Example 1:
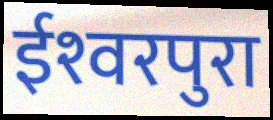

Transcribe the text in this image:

ईश्वरपुरा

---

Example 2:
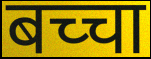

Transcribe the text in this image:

बच्‍चा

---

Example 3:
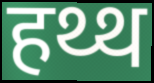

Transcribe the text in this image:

हथ्थ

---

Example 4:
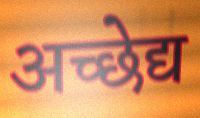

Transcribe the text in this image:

अच्छेद्य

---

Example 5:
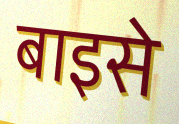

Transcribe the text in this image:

बाइसे